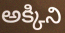
అక్కిని